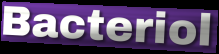
Bacteriol